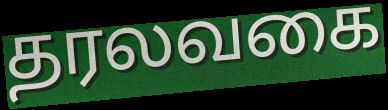
தரலவகை